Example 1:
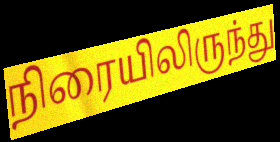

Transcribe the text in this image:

நிரையிலிருந்து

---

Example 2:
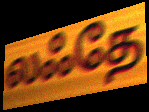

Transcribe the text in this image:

லஃதே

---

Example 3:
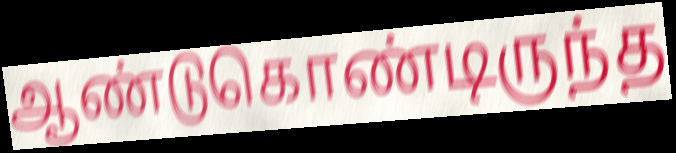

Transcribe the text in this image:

ஆண்டுகொண்டிருந்த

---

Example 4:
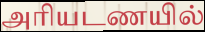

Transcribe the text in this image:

அரியடணயில்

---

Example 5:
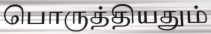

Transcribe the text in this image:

பொருத்தியதும்